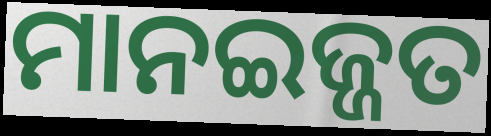
ମାନଇଜ୍ଜତ